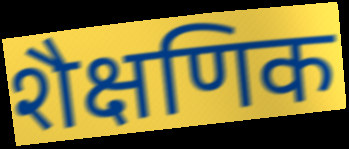
शैक्षणिक